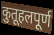
कुतूहलपूर्ण